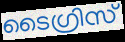
ടൈഗ്രിസ്